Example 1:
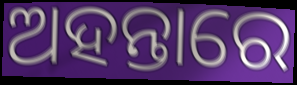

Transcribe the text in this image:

ଅହନ୍ତାରେ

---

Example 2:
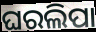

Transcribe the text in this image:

ଘରଲିପା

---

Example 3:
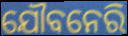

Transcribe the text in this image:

ଯୌବନେରି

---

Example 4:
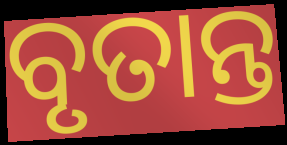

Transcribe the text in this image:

ବୃତାନ୍ତ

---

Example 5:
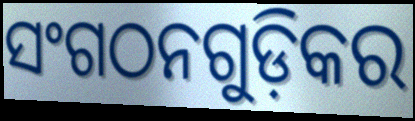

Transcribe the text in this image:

ସଂଗଠନଗୁଡ଼ିକର